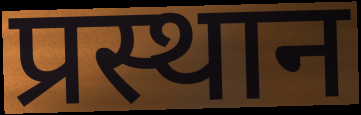
प्रस्थान